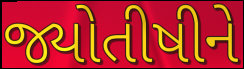
જ્યોતીષીને